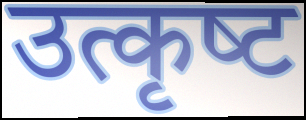
उत्कृष्‍ट